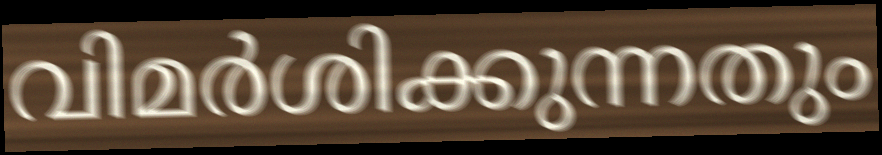
വിമർശിക്കുന്നതും